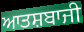
ਆਤਸ਼ਬਾਜੀ